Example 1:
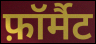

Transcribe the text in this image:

फ़ॉर्मैट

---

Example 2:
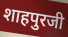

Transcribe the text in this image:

शाहपुरजी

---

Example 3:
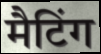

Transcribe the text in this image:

मैटिंग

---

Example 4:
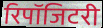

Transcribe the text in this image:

रिपॉजिटरी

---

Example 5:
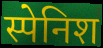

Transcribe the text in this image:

स्पेनिश